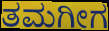
ತಮಗೀಗ